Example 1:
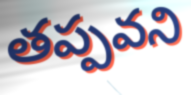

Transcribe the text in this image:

తప్పవని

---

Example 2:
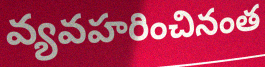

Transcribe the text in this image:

వ్యవహరించినంత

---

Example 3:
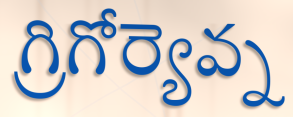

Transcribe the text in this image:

గ్రిగోర్యెవ్న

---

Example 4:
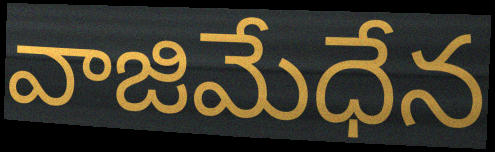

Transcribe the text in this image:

వాజిమేధేన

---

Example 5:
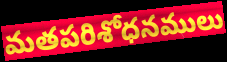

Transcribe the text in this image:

మతపరిశోధనములు